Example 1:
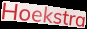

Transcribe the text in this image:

Hoekstra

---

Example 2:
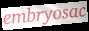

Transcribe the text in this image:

embryosac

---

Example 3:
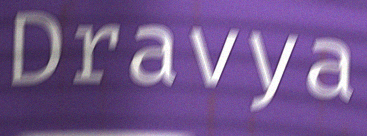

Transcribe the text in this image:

Dravya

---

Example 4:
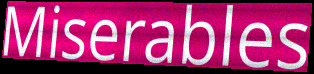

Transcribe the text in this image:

Miserables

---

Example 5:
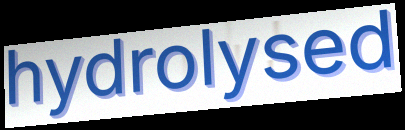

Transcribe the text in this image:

hydrolysed